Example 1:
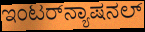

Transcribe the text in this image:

ಇಂಟರ್‌ನ್ಯಾಷನಲ್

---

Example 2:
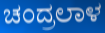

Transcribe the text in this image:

ಚಂದ್ರಲಾಳ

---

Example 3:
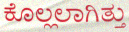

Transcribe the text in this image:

ಕೊಲ್ಲಲಾಗಿತ್ತು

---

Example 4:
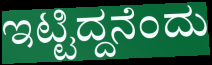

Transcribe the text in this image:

ಇಟ್ಟಿದ್ದನೆಂದು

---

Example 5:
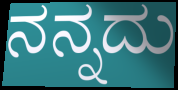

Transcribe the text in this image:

ನನ್ನದು